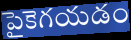
పైకెగయడం